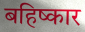
बहिष्‍कार